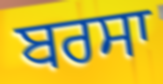
ਬਰਸਾ